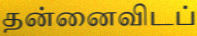
தன்னைவிடப்